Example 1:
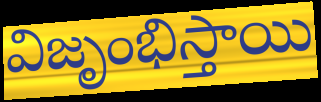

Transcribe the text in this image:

విజృంభిస్తాయి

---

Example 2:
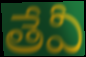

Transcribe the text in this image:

తేవీ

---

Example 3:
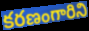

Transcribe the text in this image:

కరణంగారిని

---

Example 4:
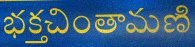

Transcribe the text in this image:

భక్తచింతామణి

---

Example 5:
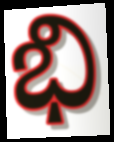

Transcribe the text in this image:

భి